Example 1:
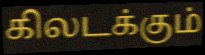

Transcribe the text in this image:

கிலடக்கும்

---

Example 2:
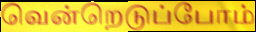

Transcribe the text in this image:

வென்றெடுப்போம்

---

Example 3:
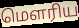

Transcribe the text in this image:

மெளரிய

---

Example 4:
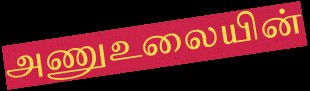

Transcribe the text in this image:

அணுஉலையின்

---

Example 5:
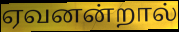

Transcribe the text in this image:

ஏவனன்றால்